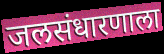
जलसंधारणाला